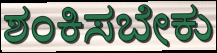
ಶಂಕಿಸಬೇಕು